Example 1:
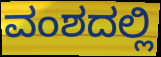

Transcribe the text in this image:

ವಂಶದಲ್ಲಿ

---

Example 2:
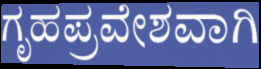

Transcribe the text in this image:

ಗೃಹಪ್ರವೇಶವಾಗಿ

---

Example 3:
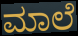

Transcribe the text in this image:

ಮಾಲೆ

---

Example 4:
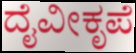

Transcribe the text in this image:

ದೈವೀಕೃಪೆ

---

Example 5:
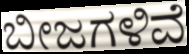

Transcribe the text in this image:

ಬೀಜಗಳಿವೆ